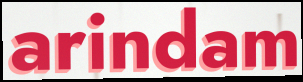
arindam